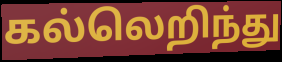
கல்லெறிந்து